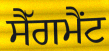
ਸੈੱਗਮੈਂਟ